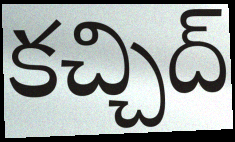
కచ్చిద్